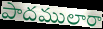
పాదములారా